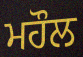
ਮਹੌਲ